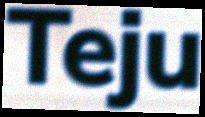
Teju